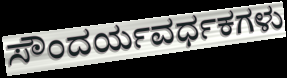
ಸೌಂದರ್ಯವರ್ಧಕಗಳು